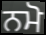
ਨਮੋ